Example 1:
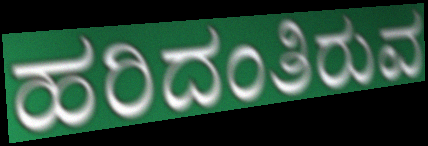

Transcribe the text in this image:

ಹರಿದಂತಿರುವ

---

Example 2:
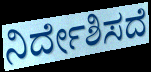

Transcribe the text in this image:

ನಿರ್ದೇಶಿಸದೆ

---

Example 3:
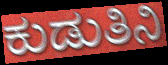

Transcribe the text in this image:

ಕುಡುತಿನಿ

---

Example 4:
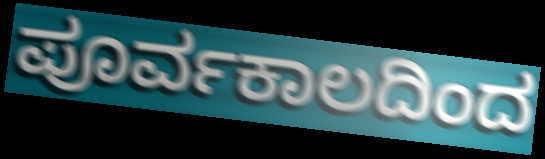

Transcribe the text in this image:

ಪೂರ್ವಕಾಲದಿಂದ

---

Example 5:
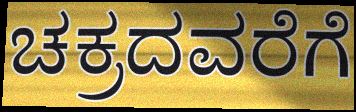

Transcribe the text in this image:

ಚಕ್ರದವರೆಗೆ